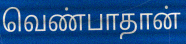
வெண்பாதான்